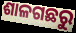
ଶାଳଗଛରୁ